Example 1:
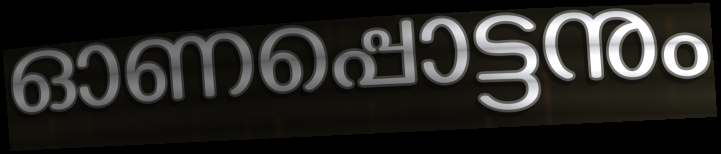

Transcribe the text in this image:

ഓണപ്പൊട്ടനും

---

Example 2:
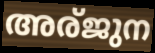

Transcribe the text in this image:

അര്ജുന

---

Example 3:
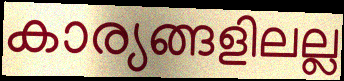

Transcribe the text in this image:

കാര്യങ്ങളിലല്ല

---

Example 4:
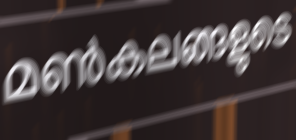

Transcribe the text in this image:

മൺകലങ്ങളുടെ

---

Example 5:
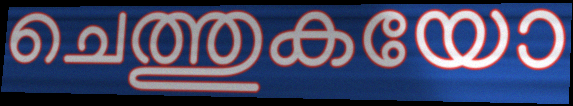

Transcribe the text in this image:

ചെത്തുകയോ